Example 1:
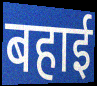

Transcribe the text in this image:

बहाई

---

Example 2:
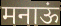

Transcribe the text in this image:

मनाऊं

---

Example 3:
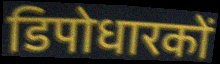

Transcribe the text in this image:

डिपोधारकों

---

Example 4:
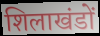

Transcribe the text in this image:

शिलाखंडों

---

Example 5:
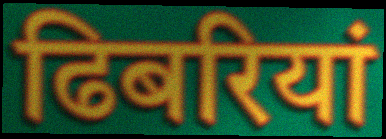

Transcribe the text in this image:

ढिबरियां